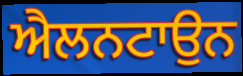
ਐਲਨਟਾਉਨ